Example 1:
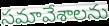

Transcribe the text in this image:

సమావేశాలను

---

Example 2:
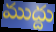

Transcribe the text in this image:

ముద్దు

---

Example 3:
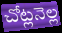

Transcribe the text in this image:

చోట్లనెల్ల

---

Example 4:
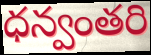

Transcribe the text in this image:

ధన్వంతరి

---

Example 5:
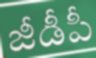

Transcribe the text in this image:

జీడీపీ